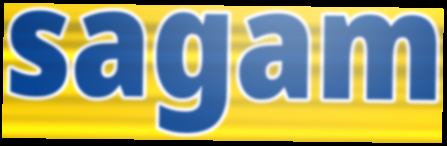
sagam